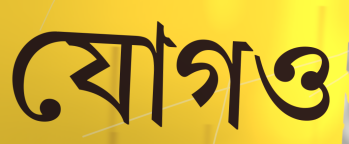
যোগও